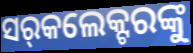
ସର୍‌କଲେକ୍ଟରଙ୍କୁ